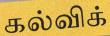
கல்விக்